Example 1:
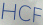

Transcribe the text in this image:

HCF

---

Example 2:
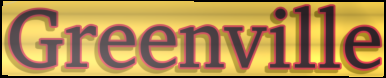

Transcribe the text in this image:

Greenville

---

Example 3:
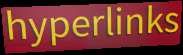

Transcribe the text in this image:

hyperlinks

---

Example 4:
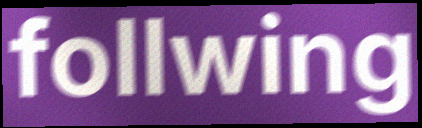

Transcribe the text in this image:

follwing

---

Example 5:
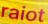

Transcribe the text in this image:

raiot